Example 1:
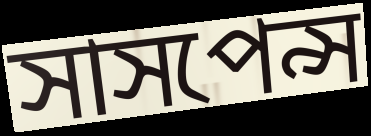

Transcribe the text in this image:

সাসপেন্স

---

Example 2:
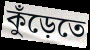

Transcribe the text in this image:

কুঁড়েতে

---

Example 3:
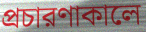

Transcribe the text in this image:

প্রচারণাকালে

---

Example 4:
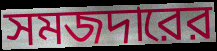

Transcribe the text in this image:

সমজদারের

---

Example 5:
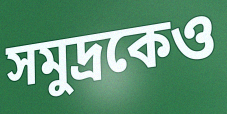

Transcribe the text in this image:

সমুদ্রকেও